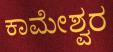
ಕಾಮೇಶ್ವರ